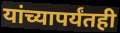
यांच्यापर्यंतही